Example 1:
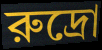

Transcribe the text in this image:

রুদ্রো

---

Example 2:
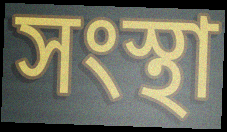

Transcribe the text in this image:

সংস্থা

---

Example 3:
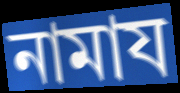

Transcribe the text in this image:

নামায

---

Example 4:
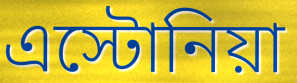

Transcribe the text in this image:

এস্টোনিয়া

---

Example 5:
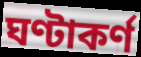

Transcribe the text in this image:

ঘণ্টাকর্ণ